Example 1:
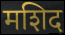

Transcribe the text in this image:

मशिद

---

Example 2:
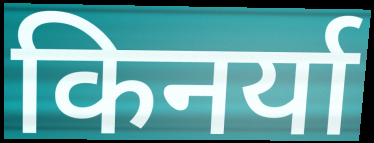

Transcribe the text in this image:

किनर्या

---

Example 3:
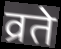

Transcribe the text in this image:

व्रते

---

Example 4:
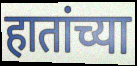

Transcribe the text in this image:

हातांच्या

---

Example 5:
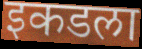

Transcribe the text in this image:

इकडला